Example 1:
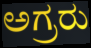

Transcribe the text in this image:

ಅಗ್ರರು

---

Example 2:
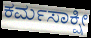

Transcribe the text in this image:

ಕರ್ಮಸಾಕ್ಷೀ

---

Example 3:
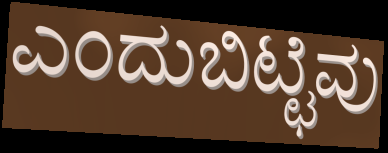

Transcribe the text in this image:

ಎಂದುಬಿಟ್ಟೆವು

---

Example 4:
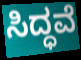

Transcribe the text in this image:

ಸಿದ್ಧವೆ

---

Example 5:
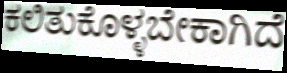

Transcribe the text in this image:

ಕಲಿತುಕೊಳ್ಳಬೇಕಾಗಿದೆ